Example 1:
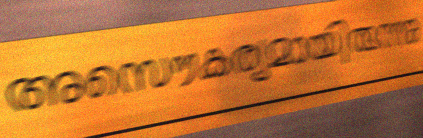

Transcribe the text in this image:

അസൌകര്യമായിരുന്നു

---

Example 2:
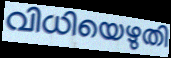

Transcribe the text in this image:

വിധിയെഴുതി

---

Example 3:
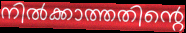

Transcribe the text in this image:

നിൽക്കാത്തതിന്റെ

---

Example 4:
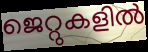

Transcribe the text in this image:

ജെറ്റുകളിൽ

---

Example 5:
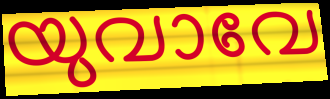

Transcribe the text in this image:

യുവാവേ